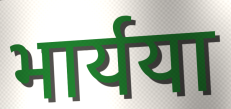
भार्यया